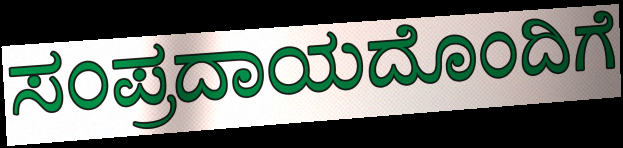
ಸಂಪ್ರದಾಯದೊಂದಿಗೆ